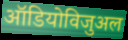
ऑडियोविजुअल